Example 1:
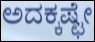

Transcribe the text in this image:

ಅದಕ್ಕಷ್ಟೇ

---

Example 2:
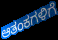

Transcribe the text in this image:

ಆತಂಕಗಳಿಗೆ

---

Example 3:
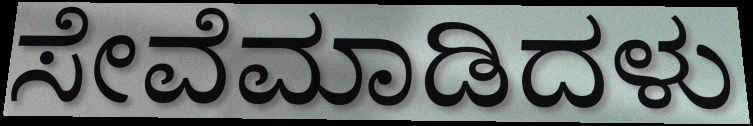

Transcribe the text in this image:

ಸೇವೆಮಾಡಿದಳು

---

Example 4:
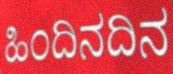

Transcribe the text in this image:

ಹಿಂದಿನದಿನ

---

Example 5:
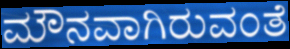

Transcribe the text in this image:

ಮೌನವಾಗಿರುವಂತೆ